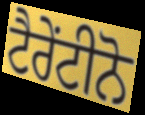
ਟੈਰੇਂਟੀਨੋ